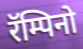
रॅम्पिनो